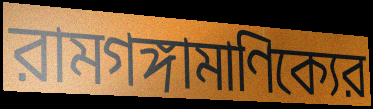
রামগঙ্গামাণিক্যের